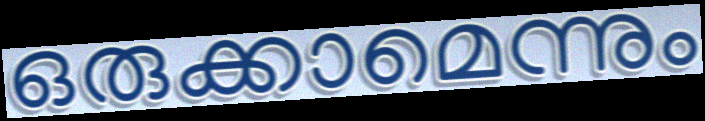
ഒരുക്കാമെന്നും